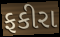
ફકીરા